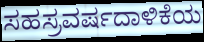
ಸಹಸ್ರವರ್ಷದಾಳಿಕೆಯ